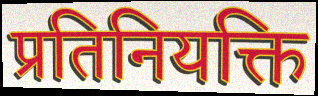
प्रतिनियक्ति